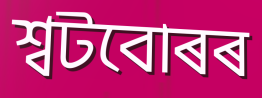
শ্বটবোৰৰ